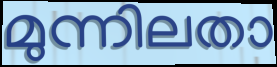
മുന്നിലതാ